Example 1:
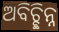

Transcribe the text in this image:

ଅବିଚ୍ଛିନ୍ନ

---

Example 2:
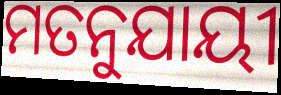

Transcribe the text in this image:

ମତନୁଯାୟୀ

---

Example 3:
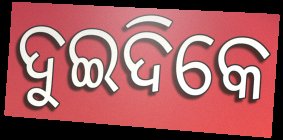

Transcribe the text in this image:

ଦୁଇଦିକେ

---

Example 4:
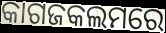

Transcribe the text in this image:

କାଗଜକଲମରେ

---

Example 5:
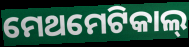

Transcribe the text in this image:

ମେଥମେଟିକାଲ୍